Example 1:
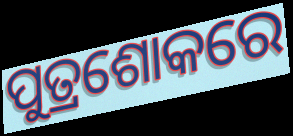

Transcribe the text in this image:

ପୁତ୍ରଶୋକରେ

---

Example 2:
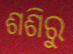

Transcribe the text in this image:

ଶଶିରୁ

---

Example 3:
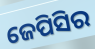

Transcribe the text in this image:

ଜେପିସିର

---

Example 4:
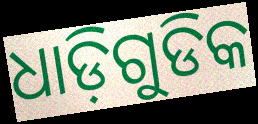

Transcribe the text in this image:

ଧାଡ଼ିଗୁଡିକ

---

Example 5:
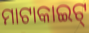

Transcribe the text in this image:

ମାଟାକାଇଟ୍